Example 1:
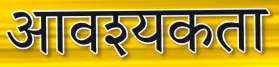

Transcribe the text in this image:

आवश्यकता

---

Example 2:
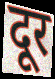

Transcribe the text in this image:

दूर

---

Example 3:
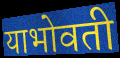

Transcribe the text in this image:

याभोवती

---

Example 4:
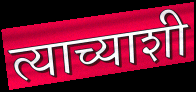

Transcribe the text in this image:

त्याच्याशी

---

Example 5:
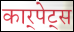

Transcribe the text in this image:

कार्पेट्स